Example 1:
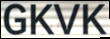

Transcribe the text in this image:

GKVK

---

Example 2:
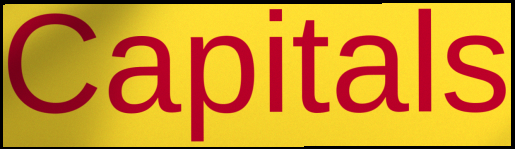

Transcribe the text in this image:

Capitals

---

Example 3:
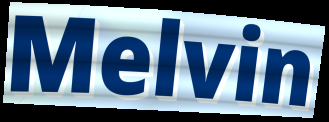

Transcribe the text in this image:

Melvin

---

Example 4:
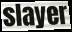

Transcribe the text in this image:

slayer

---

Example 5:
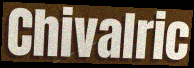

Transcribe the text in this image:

Chivalric